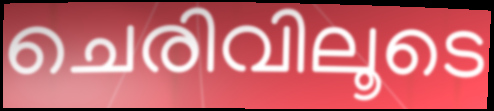
ചെരിവിലൂടെ